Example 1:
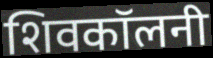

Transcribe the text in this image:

शिवकॉलनी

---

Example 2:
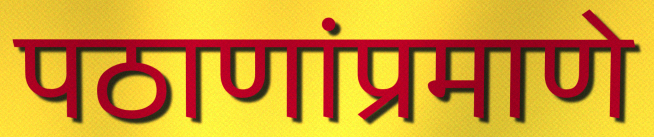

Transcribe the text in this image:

पठाणांप्रमाणे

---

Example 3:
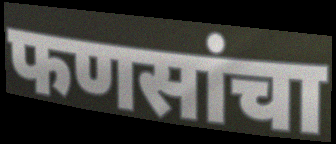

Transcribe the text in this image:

फणसांचा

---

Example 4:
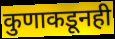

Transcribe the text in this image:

कुणाकडूनही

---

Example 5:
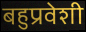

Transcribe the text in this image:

बहुप्रवेशी